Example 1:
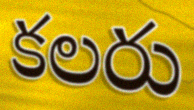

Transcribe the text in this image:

కలరు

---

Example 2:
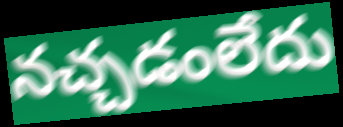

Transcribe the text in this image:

నచ్చడంలేదు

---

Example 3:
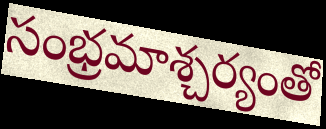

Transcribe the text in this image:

సంభ్రమాశ్చర్యంతో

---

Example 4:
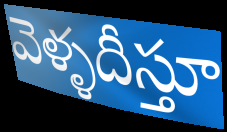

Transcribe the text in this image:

వెళ్ళదీస్తూ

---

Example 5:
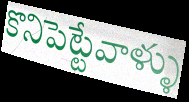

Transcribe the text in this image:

కొనిపెట్టేవాళ్ళు